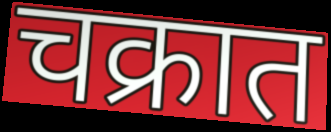
चक्रात